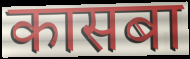
कासबा